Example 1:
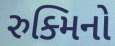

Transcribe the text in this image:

રુક્મિનો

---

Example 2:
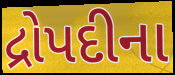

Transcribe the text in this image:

દ્રોપદીના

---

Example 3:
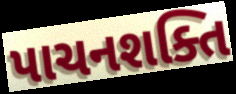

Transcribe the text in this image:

પાચનશક્તિ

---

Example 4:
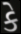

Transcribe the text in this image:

કે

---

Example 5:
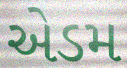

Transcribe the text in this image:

એડમ